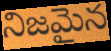
నిజమైన